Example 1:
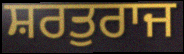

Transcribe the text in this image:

ਸ਼ਰਤੁਰਾਜ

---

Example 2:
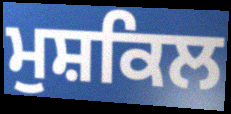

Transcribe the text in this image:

ਮੁਸ਼ਕਿਲ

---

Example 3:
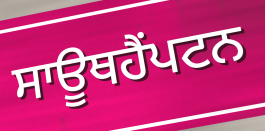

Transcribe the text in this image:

ਸਾਊਥਹੈਂਪਟਨ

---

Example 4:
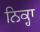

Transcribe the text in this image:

ਨਿਕ੍ਹਾ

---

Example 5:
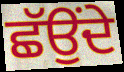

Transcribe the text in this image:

ਛੱਉਂਦੇ